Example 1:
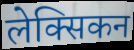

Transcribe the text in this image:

लेक्सिकन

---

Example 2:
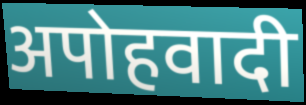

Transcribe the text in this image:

अपोहवादी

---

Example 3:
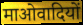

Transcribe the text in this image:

माओवादियों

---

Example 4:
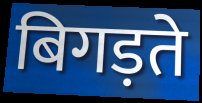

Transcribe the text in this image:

बिगड़ते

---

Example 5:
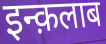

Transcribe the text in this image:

इन्क़लाब